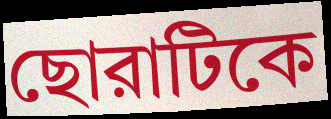
ছোরাটিকে